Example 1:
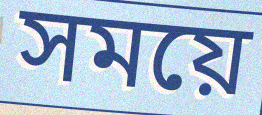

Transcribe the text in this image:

সময়ে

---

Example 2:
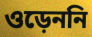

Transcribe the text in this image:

ওড়েননি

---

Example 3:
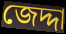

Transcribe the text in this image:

জেদ্দা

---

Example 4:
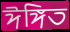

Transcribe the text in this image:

ঈঙ্গিত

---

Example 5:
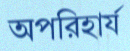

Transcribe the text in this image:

অপরিহার্য